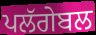
ਪਲੱਗੇਬਲ